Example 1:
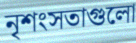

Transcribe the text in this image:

নৃশংসতাগুলো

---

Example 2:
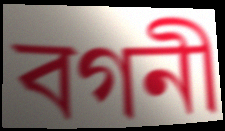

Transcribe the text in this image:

বগনী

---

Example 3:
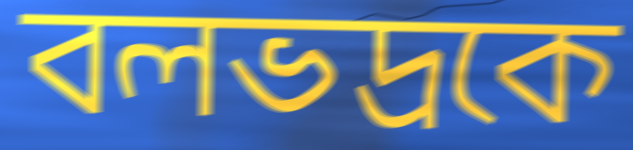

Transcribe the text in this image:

বলভদ্রকে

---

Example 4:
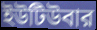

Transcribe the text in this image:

ইউটিউবার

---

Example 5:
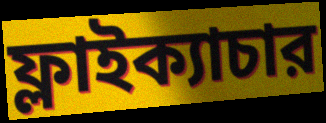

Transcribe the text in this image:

ফ্লাইক্যাচার